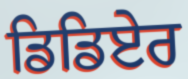
ਡਿਡਿਏਰ